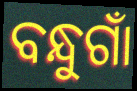
ବନ୍ଧୁଗାଁ